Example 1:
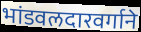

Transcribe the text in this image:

भांडवलदारवर्गाने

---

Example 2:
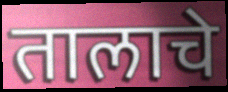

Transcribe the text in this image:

तालाचे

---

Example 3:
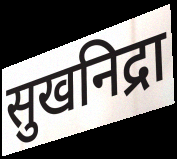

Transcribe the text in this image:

सुखनिद्रा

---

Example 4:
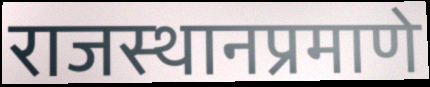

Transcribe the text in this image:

राजस्थानप्रमाणे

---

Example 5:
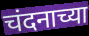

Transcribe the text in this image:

चंदनाच्या